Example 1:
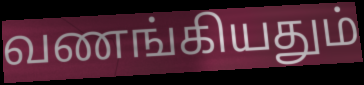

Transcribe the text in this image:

வணங்கியதும்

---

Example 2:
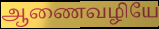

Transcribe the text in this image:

ஆணைவழியே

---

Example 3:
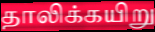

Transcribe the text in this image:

தாலிக்கயிறு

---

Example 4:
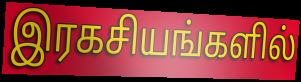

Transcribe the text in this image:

இரகசியங்களில்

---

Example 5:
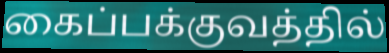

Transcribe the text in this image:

கைப்பக்குவத்தில்